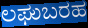
ಲಘುಬರಹ